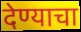
देण्याचा